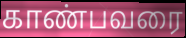
காண்பவரை